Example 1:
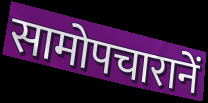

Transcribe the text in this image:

सामोपचारानें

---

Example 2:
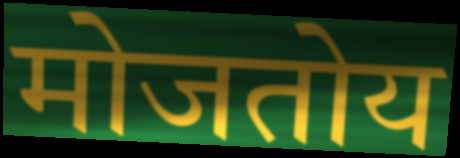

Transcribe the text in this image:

मोजतोय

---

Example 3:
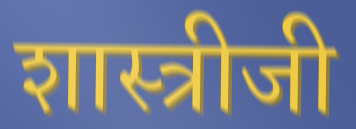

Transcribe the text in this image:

शास्त्रीजी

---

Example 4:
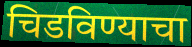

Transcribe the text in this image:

चिडविण्याचा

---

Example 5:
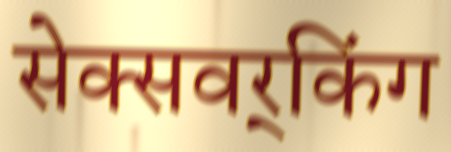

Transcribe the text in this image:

सेक्सवर्किंग